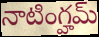
నాటింగ్హమ్